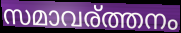
സമാവര്ത്തനം